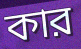
কার